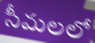
సీమలలో